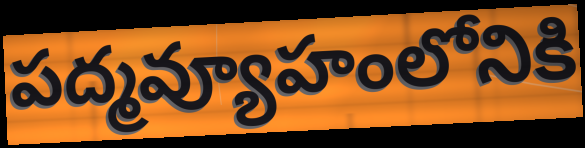
పద్మవ్యూహంలోనికి